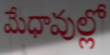
మేధావుల్లో